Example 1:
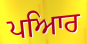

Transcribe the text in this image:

ਪਆਿਰ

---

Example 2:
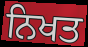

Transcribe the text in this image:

ਨਿਖਤ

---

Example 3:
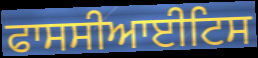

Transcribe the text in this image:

ਫਾਸਸੀਆਈਟਿਸ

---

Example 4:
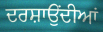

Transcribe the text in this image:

ਦਰਸ਼ਾਉਂਦੀਆਂ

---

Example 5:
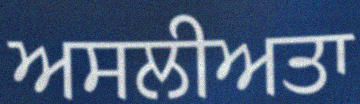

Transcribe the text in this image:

ਅਸਲੀਅਤਾ